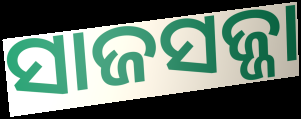
ସାଜସଜ୍ଜା